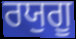
ਰਯੁਗੂ